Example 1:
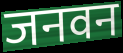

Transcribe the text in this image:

जनवन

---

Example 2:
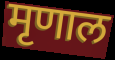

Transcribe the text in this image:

मृणाल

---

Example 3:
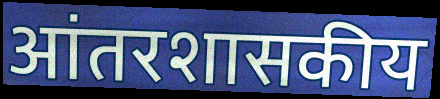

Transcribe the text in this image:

आंतरशासकीय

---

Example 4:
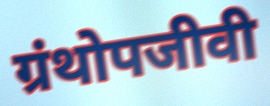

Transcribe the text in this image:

ग्रंथोपजीवी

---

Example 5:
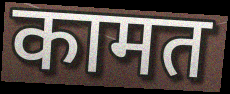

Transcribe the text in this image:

कामत